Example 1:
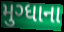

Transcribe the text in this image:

મુગ્ધાના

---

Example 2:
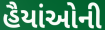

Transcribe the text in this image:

હૈયાંઓની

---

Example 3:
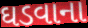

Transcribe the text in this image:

ઘડવાના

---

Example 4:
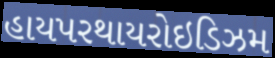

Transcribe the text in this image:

હાયપરથાયરોઇડિઝમ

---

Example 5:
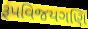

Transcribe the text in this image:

રૂપવિજયગણિ